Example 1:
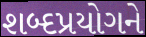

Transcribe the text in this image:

શબ્દપ્રયોગને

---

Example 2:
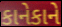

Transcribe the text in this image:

કાનેકાને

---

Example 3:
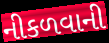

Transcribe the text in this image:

નીકળવાની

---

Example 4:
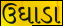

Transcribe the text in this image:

ઉઘાડા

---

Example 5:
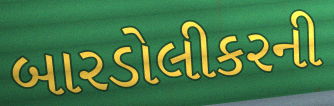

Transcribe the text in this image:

બારડોલીકરની